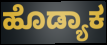
ಹೊಡ್ಯಾಕ